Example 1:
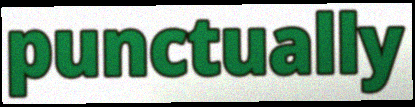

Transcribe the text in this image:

punctually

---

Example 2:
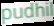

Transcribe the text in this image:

pudhil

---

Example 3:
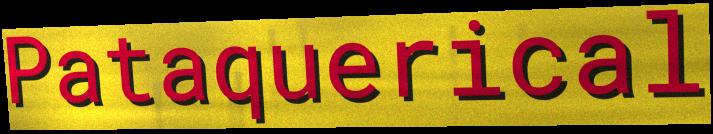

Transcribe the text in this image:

Pataquerical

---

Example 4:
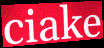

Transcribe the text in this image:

ciake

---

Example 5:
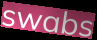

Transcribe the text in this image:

swabs